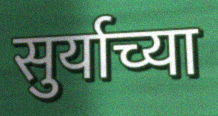
सुर्याच्या